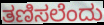
ತಣಿಸಲೆಂದು